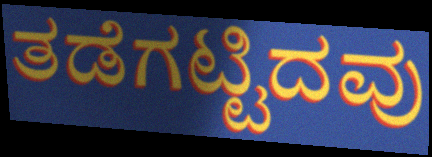
ತಡೆಗಟ್ಟಿದವು